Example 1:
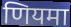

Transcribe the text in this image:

णियमा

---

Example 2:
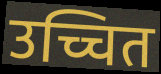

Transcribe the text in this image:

उच्चित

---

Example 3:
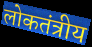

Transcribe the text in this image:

लोकतंत्रीय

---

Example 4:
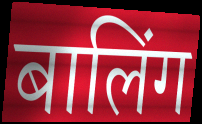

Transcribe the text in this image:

बालिंग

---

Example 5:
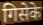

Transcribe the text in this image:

गिसेके